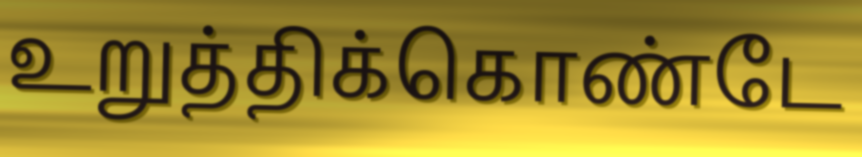
உறுத்திக்கொண்டே